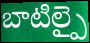
బాటిల్పై